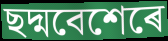
ছদ্মবেশেৰে